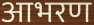
आभरण